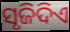
ସୃଜିଦିଏ